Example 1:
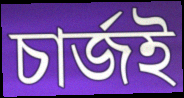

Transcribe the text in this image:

চার্জই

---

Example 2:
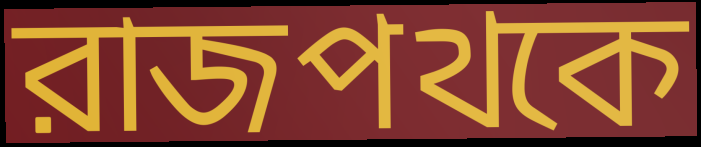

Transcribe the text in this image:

রাজপথকে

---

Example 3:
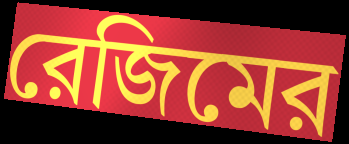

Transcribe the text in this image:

রেজিমের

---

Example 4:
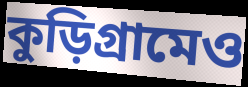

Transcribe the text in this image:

কুড়িগ্রামেও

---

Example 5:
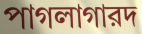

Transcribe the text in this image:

পাগলাগারদ